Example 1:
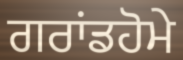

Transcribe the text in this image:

ਗਰਾਂਡਹੋਮੇ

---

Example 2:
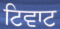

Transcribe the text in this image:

ਟਿਵਾਟ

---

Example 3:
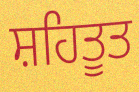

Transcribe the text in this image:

ਸ਼ਹਿਤੂਤ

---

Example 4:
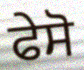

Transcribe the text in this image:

ਫੇਸੋ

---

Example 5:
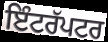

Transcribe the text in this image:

ਇੰਟਰੱਪਟਰ